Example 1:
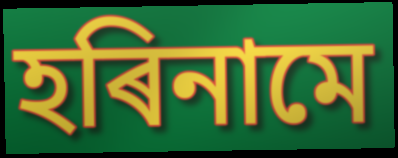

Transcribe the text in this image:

হৰিনামে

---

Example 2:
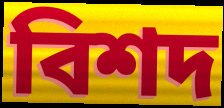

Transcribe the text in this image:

বিশদ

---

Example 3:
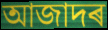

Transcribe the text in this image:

আজাদৰ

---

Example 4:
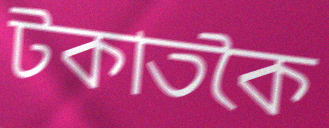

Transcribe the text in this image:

টকাতকৈ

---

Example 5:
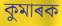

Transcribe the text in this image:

কুমাৰক